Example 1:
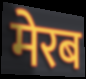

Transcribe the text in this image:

मेरब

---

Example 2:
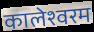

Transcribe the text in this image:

कालेश्वरम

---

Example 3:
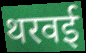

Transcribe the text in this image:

थरवई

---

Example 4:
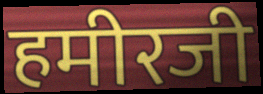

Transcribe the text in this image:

हमीरजी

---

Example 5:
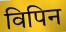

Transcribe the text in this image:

विपिन